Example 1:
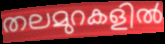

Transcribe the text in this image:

തലമുറകളിൽ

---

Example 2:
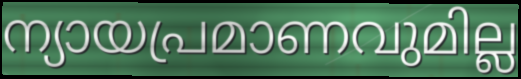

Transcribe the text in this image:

ന്യായപ്രമാണവുമില്ല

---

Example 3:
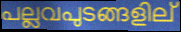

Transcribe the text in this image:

പല്ലവപുടങ്ങളില്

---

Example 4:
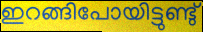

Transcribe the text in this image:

ഇറങ്ങിപോയിട്ടുണ്ടു്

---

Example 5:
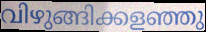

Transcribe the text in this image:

വിഴുങ്ങിക്കളഞ്ഞു